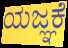
ಯಜ್ಞಕೆ